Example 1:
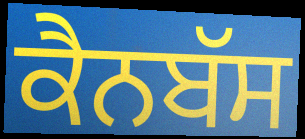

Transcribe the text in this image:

ਕੈਨਬੱਸ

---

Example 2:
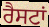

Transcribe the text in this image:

ਰੈਸਟਾਂ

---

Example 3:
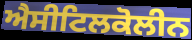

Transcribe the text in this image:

ਐਸੀਟਿਲਕੋਲੀਨ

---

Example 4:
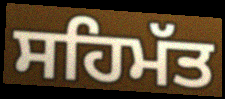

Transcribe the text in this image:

ਸਹਿਮੱਤ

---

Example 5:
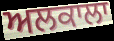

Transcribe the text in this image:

ਅਲਕਾਲਾ